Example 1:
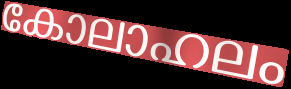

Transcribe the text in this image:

കോലാഹലം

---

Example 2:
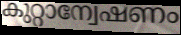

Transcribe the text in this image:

കുറ്റാന്വേഷണം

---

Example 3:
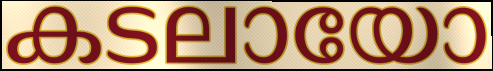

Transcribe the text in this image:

കടലായോ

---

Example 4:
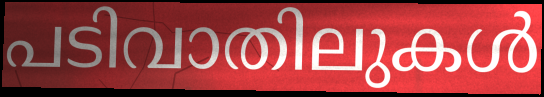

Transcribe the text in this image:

പടിവാതിലുകൾ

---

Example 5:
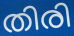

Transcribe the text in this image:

തിരി